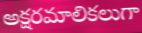
అక్షరమాలికలుగా